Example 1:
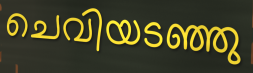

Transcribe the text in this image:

ചെവിയടഞ്ഞു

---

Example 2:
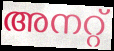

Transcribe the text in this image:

അനറ്റ്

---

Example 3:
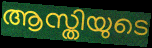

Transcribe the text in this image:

ആസ്തിയുടെ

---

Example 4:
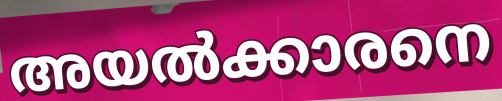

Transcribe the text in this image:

അയൽക്കാരനെ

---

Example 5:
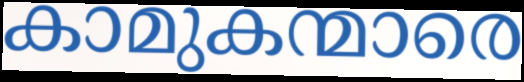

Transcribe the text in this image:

കാമുകന്മാരെ